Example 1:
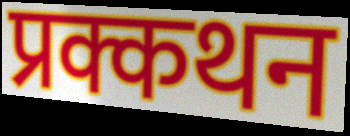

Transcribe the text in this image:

प्रक्कथन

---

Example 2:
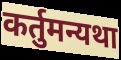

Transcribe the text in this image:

कर्तुमन्यथा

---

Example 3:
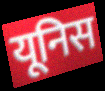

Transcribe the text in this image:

यूनिस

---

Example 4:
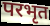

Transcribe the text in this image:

परभृत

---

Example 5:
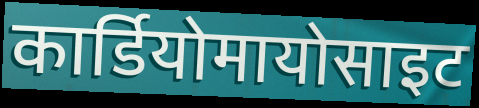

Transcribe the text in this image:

कार्डियोमायोसाइट